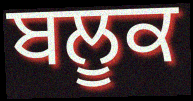
ਬਲੂਕ